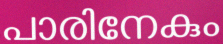
പാരിനേകും